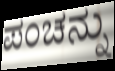
ಪಂಚನ್ನು